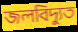
জলবিদ্যুত